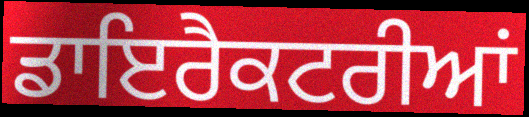
ਡਾਇਰੈਕਟਰੀਆਂ